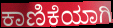
ಕಾಣಿಕೆಯಾಗಿ